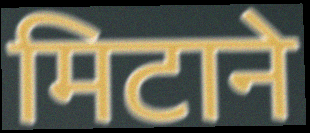
मिटाने